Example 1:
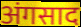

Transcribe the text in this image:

अंगसाद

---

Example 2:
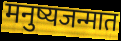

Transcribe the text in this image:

मनुष्यजन्मात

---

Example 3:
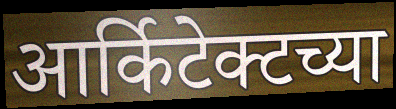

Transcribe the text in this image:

आर्किटेक्टच्या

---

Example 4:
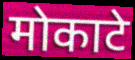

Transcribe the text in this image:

मोकाटे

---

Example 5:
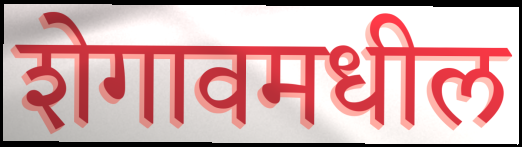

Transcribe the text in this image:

शेगावमधील